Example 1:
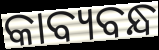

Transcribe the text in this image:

କାବ୍ୟବନ୍ଧ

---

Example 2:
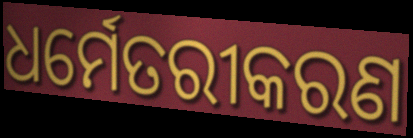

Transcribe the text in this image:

ଧର୍ମେତରୀକରଣ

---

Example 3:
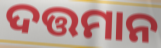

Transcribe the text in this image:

ଦତ୍ତମାନ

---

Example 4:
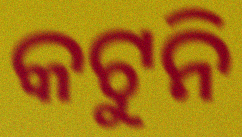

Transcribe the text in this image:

କଟୁନି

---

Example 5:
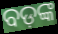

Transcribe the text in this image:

ବଡ଼ଙ୍କ